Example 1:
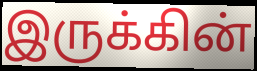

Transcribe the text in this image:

இருக்கின்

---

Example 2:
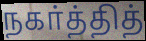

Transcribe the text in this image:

நகர்த்தித்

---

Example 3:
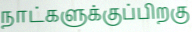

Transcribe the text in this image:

நாட்களுக்குப்பிறகு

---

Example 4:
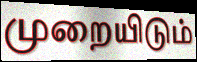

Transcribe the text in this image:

முறையிடும்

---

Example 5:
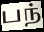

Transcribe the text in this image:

பந்